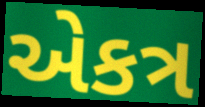
એકત્ર